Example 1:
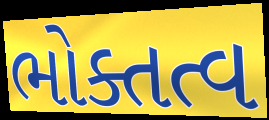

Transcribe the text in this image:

ભોક્તત્વ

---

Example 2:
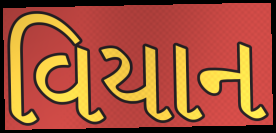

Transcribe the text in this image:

વિયાન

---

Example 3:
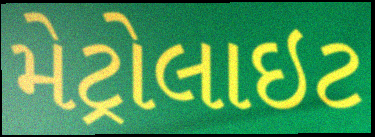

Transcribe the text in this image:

મેટ્રોલાઇટ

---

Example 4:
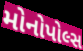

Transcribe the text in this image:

મોનોપોલ્સ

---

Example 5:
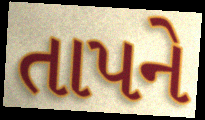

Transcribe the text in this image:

તાપને